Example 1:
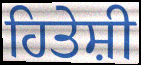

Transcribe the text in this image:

ਹਿਤੇਸ਼ੀ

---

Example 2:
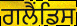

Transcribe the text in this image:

ਗਲੈਂਡਿਸ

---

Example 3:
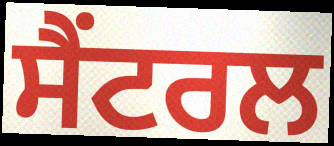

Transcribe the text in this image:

ਸੈਂਟਰਲ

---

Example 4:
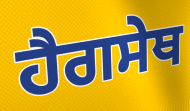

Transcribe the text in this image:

ਹੈਗਸੇਥ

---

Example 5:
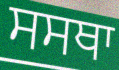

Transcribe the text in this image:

ਸਸਥਾ